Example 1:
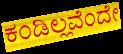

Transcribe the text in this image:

ಕಂಡಿಲ್ಲವೆಂದೇ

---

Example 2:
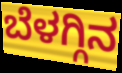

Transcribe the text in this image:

ಬೆಳಗ್ಗಿನ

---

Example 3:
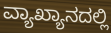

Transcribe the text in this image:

ವ್ಯಾಖ್ಯಾನದಲ್ಲಿ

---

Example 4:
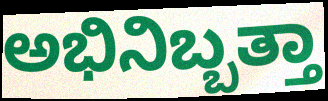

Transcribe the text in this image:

ಅಭಿನಿಬ್ಬತ್ತಾ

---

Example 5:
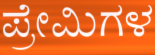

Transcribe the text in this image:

ಪ್ರೇಮಿಗಳ